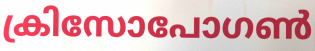
ക്രിസോപോഗൺ